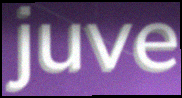
juve